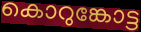
കൊറുങ്കോട്ട